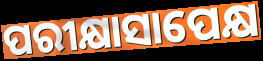
ପରୀକ୍ଷାସାପେକ୍ଷ